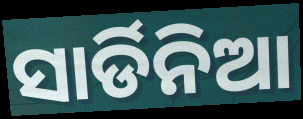
ସାର୍ଡିନିଆ